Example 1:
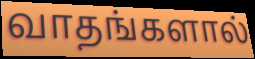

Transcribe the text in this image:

வாதங்களால்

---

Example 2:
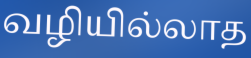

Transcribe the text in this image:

வழியில்லாத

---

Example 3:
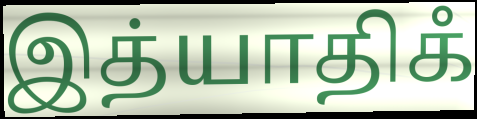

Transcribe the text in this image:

இத்யாதிகஂ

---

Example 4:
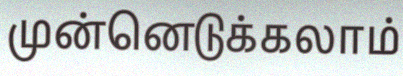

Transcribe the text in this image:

முன்னெடுக்கலாம்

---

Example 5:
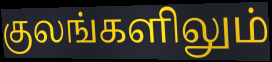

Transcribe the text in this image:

குலங்களிலும்